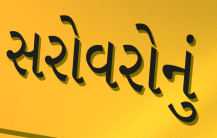
સરોવરોનું